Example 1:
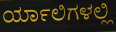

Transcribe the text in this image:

ರ್ಯಾಲಿಗಳಲ್ಲಿ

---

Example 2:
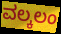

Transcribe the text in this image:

ವಲ್ಕಲಂ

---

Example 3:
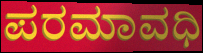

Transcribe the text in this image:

ಪರಮಾವಧಿ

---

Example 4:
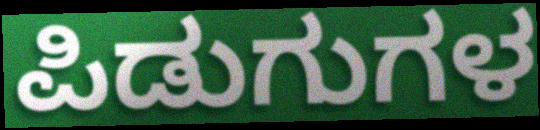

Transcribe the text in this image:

ಪಿಡುಗುಗಳ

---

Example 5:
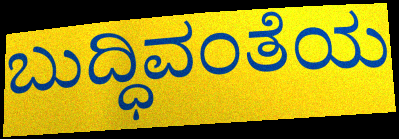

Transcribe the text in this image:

ಬುದ್ಧಿವಂತೆಯ